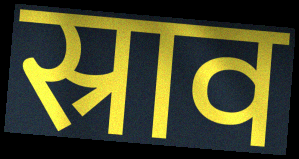
स्राव